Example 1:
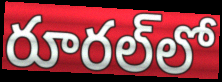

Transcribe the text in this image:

రూరల్‌లో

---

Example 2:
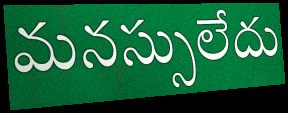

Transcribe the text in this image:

మనస్సులేదు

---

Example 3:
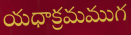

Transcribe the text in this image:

యధాక్రమముగ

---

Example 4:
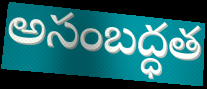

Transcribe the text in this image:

అసంబద్ధత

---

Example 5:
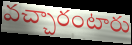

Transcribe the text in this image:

వచ్చారంటారు